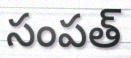
సంపత్